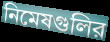
নিমেষগুলির